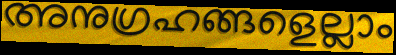
അനുഗ്രഹങ്ങളെല്ലാം